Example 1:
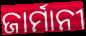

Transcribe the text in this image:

ଜାର୍ମାନୀ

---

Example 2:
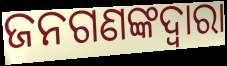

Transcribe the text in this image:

ଜନଗଣଙ୍କଦ୍ୱାରା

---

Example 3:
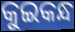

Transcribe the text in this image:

କୁଇକନ୍ଧ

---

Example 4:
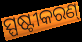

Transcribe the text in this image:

ସ୍ପଷ୍ଟୀକରଣ୍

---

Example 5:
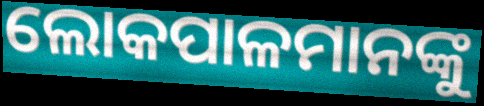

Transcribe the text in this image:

ଲୋକପାଳମାନଙ୍କୁ